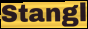
Stangl